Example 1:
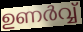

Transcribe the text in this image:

ഉണർവ്വ്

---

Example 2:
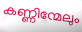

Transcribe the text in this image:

കണ്ണിന്മേലും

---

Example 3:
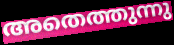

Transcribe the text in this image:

അതെത്തുന്നു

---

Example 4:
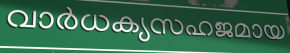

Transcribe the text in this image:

വാർധക്യസഹജമായ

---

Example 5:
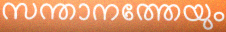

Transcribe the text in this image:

സന്താനത്തേയും